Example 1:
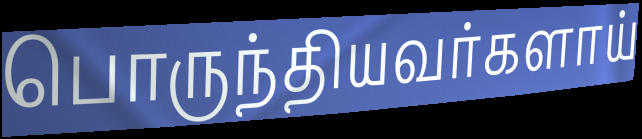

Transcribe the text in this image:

பொருந்தியவர்களாய்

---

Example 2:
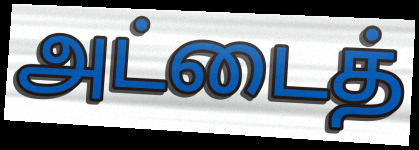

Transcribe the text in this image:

அட்டைத்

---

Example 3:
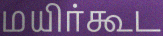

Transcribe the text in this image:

மயிர்கூட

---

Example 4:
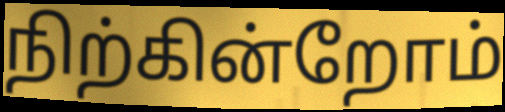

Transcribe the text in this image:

நிற்கின்றோம்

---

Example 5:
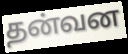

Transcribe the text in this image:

தன்வன